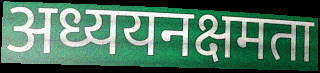
अध्ययनक्षमता